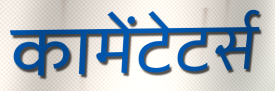
कामेंटेटर्स